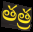
తత్ర